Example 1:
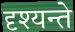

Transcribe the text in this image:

दृश्यन्ते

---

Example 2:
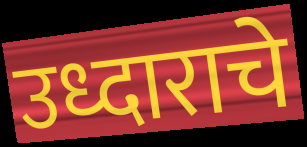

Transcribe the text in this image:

उध्दाराचे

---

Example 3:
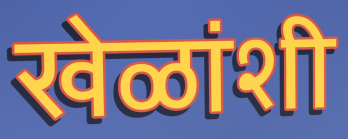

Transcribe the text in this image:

खेळांशी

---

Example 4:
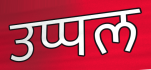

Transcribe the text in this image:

उप्पल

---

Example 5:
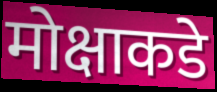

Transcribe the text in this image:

मोक्षाकडे